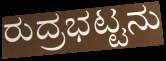
ರುದ್ರಭಟ್ಟನು